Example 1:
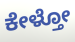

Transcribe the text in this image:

ಕೇಳ್ತೋ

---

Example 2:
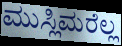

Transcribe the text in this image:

ಮುಸ್ಲಿಮರೆಲ್ಲ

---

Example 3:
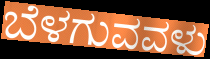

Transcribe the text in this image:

ಬೆಳಗುವವಳು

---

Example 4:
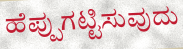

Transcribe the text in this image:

ಹೆಪ್ಪುಗಟ್ಟಿಸುವುದು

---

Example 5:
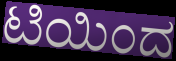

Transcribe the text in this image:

ಟಿಯಿಂದ